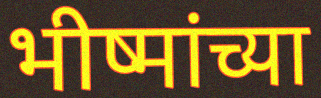
भीष्मांच्या